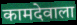
कामदेवाला